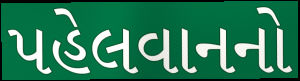
પહેલવાનનો